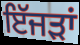
ਇੱਜੜਾਂ